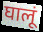
घालूं